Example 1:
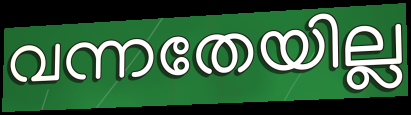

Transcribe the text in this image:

വന്നതേയില്ല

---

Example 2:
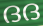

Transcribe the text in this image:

ദദ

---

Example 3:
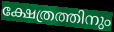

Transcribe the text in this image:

ക്ഷേത്രത്തിനും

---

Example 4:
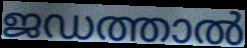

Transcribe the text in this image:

ജഡത്താൽ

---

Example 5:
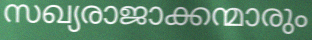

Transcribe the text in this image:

സഖ്യരാജാക്കന്മാരും